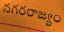
నగరరాజ్యం